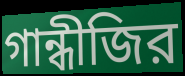
গান্ধীজির